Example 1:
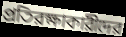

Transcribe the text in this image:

প্রতিরক্ষাকারীদের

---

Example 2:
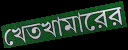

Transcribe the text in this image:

খেতখামারের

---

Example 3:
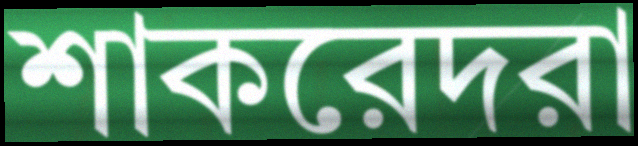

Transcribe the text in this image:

শাকরেদরা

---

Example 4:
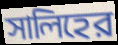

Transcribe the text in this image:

সালিহের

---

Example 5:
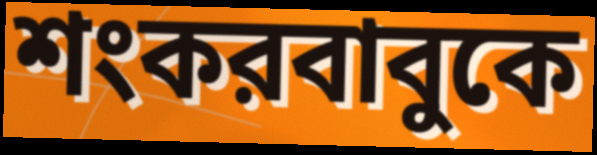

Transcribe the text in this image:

শংকরবাবুকে